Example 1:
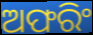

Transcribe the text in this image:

ଅଫରିଂ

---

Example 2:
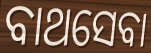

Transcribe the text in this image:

ବାଥସେବା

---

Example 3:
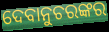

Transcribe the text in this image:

ଦେବାନୁଚରଙ୍କର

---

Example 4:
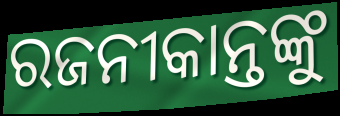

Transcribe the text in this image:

ରଜନୀକାନ୍ତଙ୍କୁ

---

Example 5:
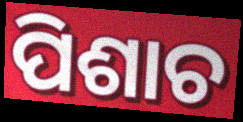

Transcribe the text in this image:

ପିଶାଚ